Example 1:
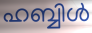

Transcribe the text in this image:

ഹബ്ബിൾ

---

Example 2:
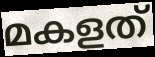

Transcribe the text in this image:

മകളത്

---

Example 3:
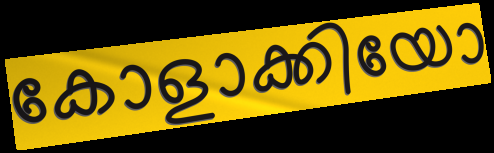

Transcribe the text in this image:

കോളാക്കിയോ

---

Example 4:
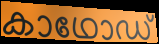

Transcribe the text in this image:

കാഥോഡ്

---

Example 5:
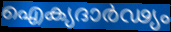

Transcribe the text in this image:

ഐക്യദാർഢ്യം